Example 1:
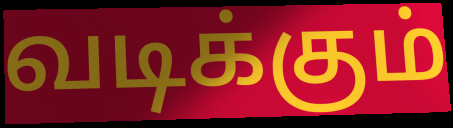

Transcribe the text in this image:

வடிக்கும்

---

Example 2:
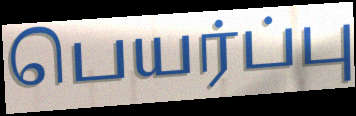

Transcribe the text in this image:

பெயர்ப்பு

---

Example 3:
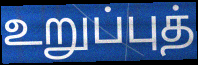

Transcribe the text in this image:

உறுப்புத்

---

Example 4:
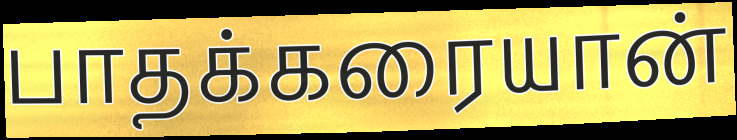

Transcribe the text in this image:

பாதக்கரையான்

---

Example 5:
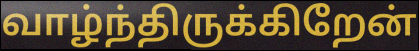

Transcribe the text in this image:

வாழ்ந்திருக்கிறேன்